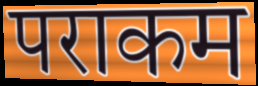
पराकम